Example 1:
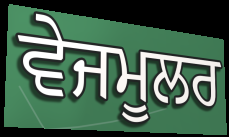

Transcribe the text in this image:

ਵੇਜਮੂਲਰ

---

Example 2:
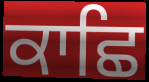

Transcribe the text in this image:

ਕਾਛਿ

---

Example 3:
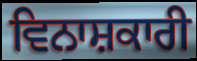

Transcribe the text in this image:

ਵਿਨਾਸ਼ਕਾਰੀ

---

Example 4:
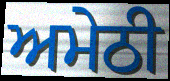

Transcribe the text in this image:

ਅਮੇਠੀ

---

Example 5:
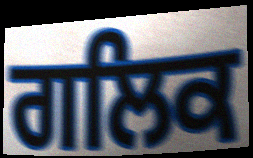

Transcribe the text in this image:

ਗਲਿਕ